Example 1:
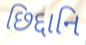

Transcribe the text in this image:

છિદ્દાનિ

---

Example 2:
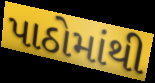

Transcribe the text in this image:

પાઠોમાંથી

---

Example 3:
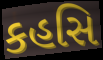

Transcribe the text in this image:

કહસિ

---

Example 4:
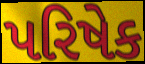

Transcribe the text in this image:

પરિષેક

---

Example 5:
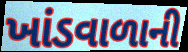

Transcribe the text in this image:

ખાંડવાળાની